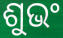
ଶୁଭଂ